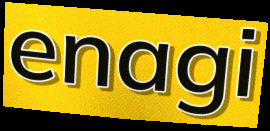
enagi